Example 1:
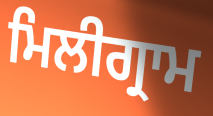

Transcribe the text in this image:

ਮਿਲੀਗ੍ਰਾਮ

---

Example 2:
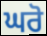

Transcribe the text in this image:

ਘਰੋ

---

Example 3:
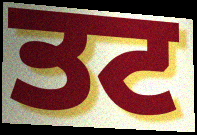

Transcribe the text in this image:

ਤਟ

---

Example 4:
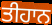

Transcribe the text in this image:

ਤੀਹਾਨ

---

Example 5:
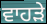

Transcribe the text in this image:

ਵਾਹੜੇ